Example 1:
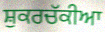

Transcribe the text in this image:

ਸ਼ੁਕਰਚੱਕੀਆ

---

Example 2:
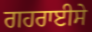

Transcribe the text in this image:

ਗਹਰਾਈਸੇ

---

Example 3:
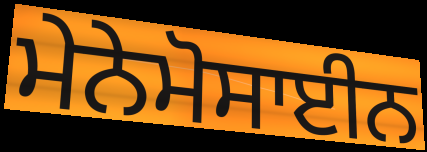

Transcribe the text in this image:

ਮੇਨੇਮੋਸਾਈਨ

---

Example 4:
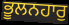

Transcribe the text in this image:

ਭੂਲਨਹਾਰੁ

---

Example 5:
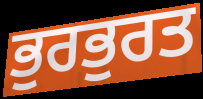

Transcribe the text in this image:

ਭੁਰਭੁਰਤ